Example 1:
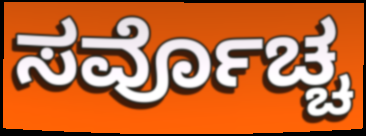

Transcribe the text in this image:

ಸರ್ವೊಚ್ಚ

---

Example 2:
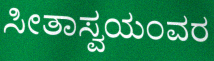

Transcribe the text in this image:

ಸೀತಾಸ್ವಯಂವರ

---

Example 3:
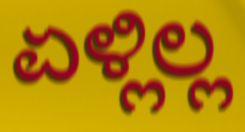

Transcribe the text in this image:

ಏಳ್ಲಿಲ್ಲ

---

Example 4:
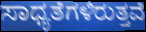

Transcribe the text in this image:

ಸಾಧ್ಯತೆಗಳಿರುತ್ತವೆ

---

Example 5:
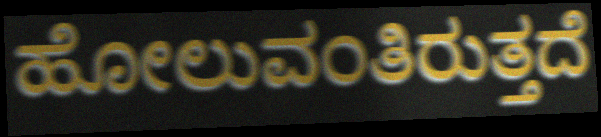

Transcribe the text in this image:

ಹೋಲುವಂತಿರುತ್ತದೆ